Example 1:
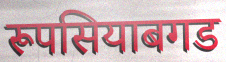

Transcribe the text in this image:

रूपसियाबगड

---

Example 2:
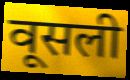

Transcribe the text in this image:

वूसली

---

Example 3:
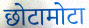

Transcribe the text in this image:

छोटामोटा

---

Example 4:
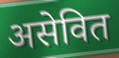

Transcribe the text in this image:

असेवित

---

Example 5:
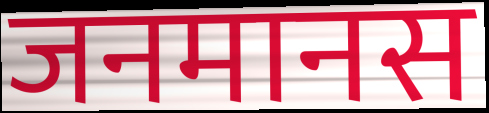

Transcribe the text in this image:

जनमानस